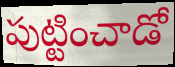
పుట్టించాడో